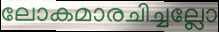
ലോകമാരചിച്ചല്ലോ